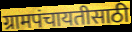
ग्रामपंचायतीसाठी